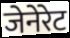
जेनेरेट